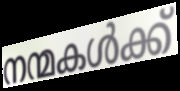
നന്മകൾക്ക്